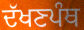
ਦੱਖਣਪੰਥ